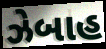
ઝેબાહ